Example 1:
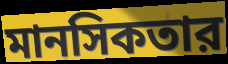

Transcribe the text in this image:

মানসিকতার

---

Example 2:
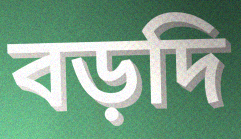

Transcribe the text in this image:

বড়দি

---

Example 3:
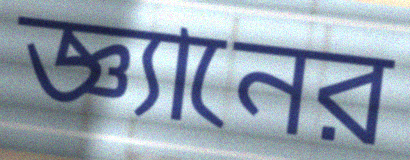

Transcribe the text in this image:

জ্ঞ্যানের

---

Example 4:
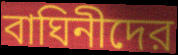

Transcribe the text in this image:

বাঘিনীদের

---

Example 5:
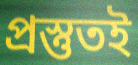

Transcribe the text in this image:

প্রস্তুতই